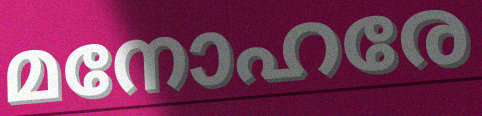
മനോഹരേ